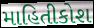
માહિતીકોશ